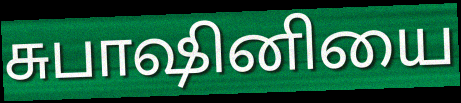
சுபாஷினியை